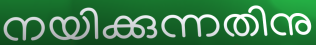
നയിക്കുന്നതിനു